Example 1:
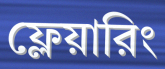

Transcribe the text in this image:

ফ্লেয়ারিং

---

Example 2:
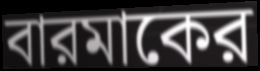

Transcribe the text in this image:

বারমাকের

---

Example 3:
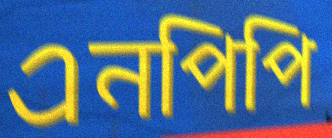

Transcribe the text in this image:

এনপিপি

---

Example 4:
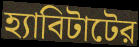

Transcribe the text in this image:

হ্যাবিটাটের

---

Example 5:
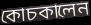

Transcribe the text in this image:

কোচকালেন